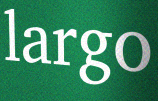
largo